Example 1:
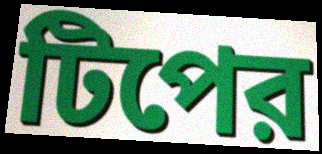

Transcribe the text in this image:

টিপের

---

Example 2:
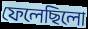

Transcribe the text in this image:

ফেলেছিলো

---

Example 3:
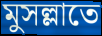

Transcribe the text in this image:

মুসল্লাতে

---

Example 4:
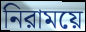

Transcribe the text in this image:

নিরাময়ে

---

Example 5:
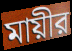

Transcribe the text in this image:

মায়ীর